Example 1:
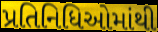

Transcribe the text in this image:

પ્રતિનિધિઓમાંથી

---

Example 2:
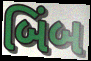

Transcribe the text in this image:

બિંબ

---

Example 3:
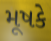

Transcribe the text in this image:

મૂષકે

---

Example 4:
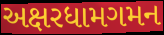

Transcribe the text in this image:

અક્ષરધામગમન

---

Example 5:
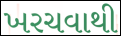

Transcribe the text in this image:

ખરચવાથી